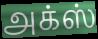
அக்ஸ்